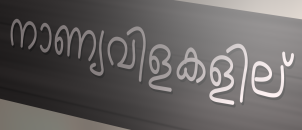
നാണ്യവിളകളില്